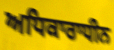
ਅਧਿਕਾਰਾਧੀਨ